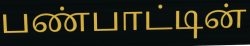
பண்பாட்டின்